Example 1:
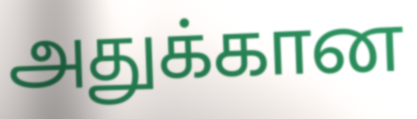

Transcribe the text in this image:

அதுக்கான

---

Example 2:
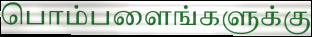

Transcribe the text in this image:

பொம்பளைங்களுக்கு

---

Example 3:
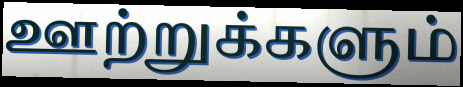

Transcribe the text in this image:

ஊற்றுக்களும்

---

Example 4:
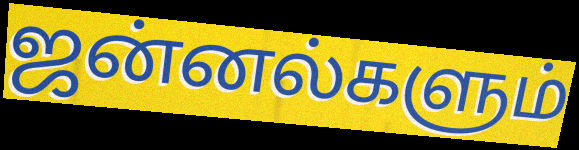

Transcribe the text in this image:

ஜன்னல்களும்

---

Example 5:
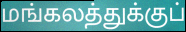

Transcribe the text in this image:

மங்கலத்துக்குப்